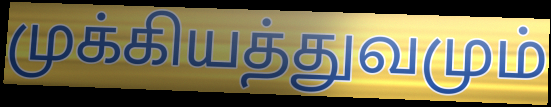
முக்கியத்துவமும்